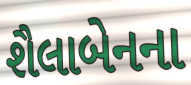
શૈલાબેનના